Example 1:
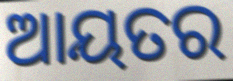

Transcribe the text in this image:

ଆୟତର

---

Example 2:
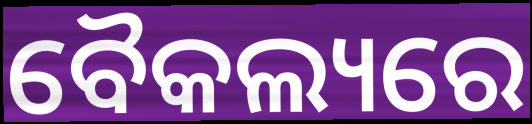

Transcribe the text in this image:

ବୈକଲ୍ୟରେ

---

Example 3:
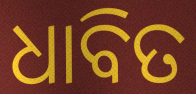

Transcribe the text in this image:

ଧାବିତ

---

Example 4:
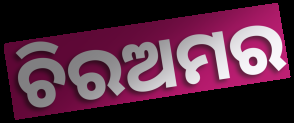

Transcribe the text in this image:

ଚିରଅମର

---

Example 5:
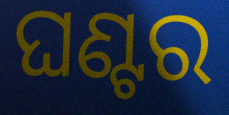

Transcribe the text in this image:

ଘଣ୍ଟର